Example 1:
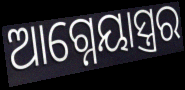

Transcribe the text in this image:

ଆଗ୍ନେୟାସ୍ତ୍ରର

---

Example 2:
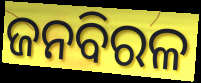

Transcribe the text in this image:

ଜନବିରଳ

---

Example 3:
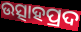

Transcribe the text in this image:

ଉତ୍ସାହପ୍ରଦ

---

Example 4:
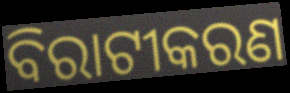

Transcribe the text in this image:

ବିରାଟୀକରଣ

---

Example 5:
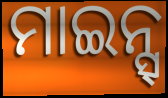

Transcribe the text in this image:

ମାଇନ୍ସ୍